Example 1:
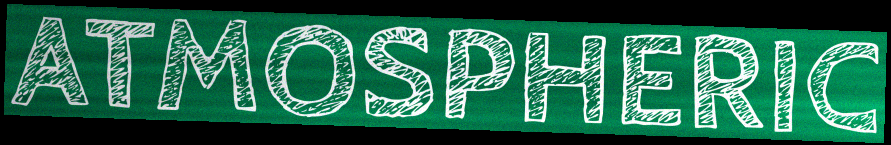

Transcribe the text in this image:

ATMOSPHERIC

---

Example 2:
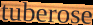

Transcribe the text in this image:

tuberose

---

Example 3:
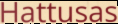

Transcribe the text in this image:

Hattusas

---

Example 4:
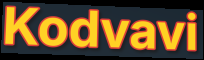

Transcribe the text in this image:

Kodvavi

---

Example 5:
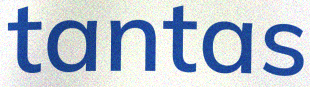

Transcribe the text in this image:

tantas